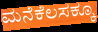
ಮನೆಕೆಲಸಕ್ಕೂ